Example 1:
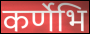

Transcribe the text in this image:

कर्णेभि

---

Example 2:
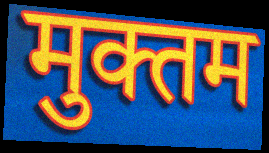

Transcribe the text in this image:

मुक्तम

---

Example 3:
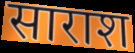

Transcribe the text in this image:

साराश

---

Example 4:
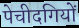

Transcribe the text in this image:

पेचीदगियों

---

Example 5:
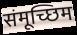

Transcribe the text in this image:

संमूच्छिम